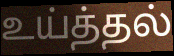
உய்த்தல்